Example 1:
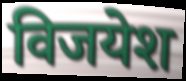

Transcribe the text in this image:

विजयेश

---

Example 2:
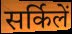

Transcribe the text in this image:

सर्किलें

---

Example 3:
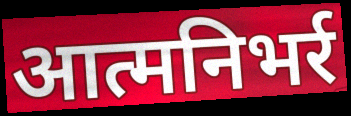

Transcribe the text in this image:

आत्मनिभर्र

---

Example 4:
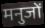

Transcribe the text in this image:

मनुजों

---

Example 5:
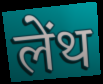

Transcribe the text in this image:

लेंथ